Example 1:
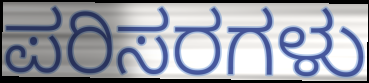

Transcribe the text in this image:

ಪರಿಸರಗಳು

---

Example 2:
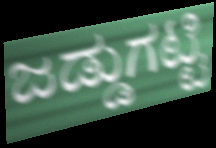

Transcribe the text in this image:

ಜಡ್ಡುಗಟ್ಟಿ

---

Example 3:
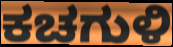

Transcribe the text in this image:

ಕಚಗುಳಿ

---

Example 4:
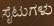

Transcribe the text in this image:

ಸೈಟುಗಳು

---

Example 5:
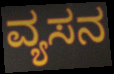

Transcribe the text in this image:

ವ್ಯಸನ